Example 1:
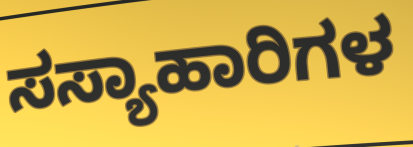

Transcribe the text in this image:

ಸಸ್ಯಾಹಾರಿಗಳ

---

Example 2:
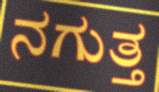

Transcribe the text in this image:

ನಗುತ್ತ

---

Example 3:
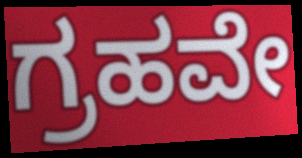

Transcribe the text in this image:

ಗ್ರಹವೇ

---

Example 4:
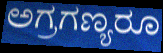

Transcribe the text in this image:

ಅಗ್ರಗಣ್ಯರೂ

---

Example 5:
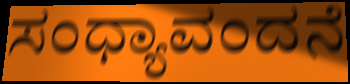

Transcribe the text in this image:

ಸಂಧ್ಯಾವಂದನೆ